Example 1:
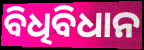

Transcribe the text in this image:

ବିଧିବିଧାନ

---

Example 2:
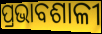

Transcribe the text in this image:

ପ୍ରଭାବଶାଳୀ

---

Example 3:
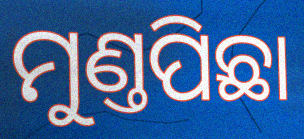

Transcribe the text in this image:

ମୁଣ୍ତପିଛା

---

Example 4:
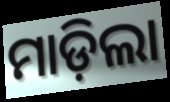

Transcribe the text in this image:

ମାଡ଼ିଲା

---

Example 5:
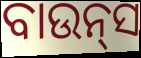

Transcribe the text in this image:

ବାଉନ୍‌ସ